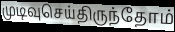
முடிவுசெய்திருந்தோம்